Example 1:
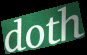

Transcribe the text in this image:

doth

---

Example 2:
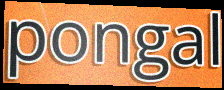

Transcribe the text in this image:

pongal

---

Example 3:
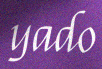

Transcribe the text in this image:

yado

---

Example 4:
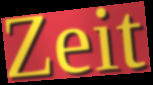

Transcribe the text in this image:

Zeit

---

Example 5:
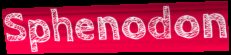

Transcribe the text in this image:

Sphenodon